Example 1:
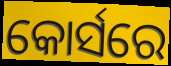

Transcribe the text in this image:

କୋର୍ସରେ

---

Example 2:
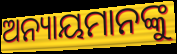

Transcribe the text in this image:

ଅନ୍ୟାୟମାନଙ୍କୁ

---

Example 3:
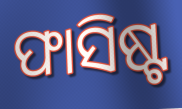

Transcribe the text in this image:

ଫାସିଷ୍ଟ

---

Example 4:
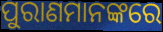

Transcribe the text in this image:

ପୁରାଣମାନଙ୍କରେ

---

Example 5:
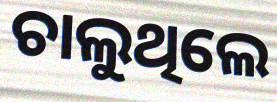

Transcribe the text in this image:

ଚାଲୁଥିଲେ